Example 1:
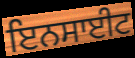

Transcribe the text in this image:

ਇਨਸਾਈਟ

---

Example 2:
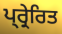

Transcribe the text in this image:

ਪ੍ਰ੍ਰੇਰਿਤ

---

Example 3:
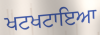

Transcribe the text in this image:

ਖਟਖਟਾਇਆ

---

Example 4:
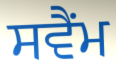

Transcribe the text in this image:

ਸਵੈਂਮ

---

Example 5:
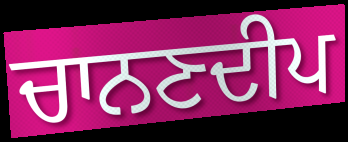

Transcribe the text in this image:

ਚਾਨਣਦੀਪ